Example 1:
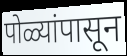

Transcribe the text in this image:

पोळ्यांपासून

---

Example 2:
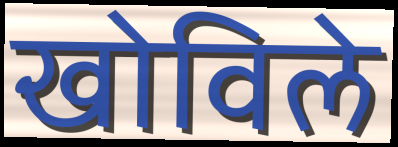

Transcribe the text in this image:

खोविले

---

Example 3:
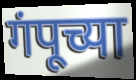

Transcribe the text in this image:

गंपूच्या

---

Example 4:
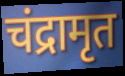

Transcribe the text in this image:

चंद्रामृत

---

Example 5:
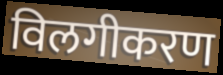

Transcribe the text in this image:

विलगीकरण